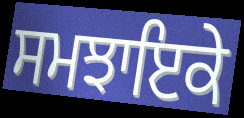
ਸਮਝਾਇਕੇ